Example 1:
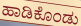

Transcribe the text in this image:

ಹಾಡಿಕೊಂಡು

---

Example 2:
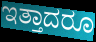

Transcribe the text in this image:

ಇತ್ತಾದರೂ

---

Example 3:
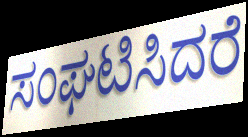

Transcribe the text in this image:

ಸಂಘಟಿಸಿದರೆ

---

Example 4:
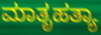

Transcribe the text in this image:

ಮಾತೃಹತ್ಯಾ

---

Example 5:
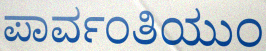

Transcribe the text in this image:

ಪಾರ್ವಂತಿಯುಂ